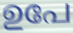
ഉപേ